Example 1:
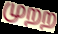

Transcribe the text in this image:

முறற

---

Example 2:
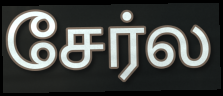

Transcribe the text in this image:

சேர்ல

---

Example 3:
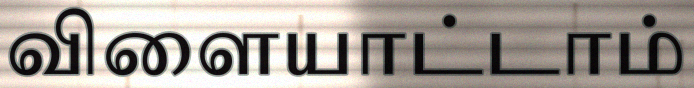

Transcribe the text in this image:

விளையாட்டாம்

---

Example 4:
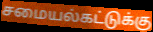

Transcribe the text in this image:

சமையல்கட்டுக்கு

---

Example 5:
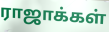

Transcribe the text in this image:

ராஜாக்கள்